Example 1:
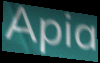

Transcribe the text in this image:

Apia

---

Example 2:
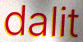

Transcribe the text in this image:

dalit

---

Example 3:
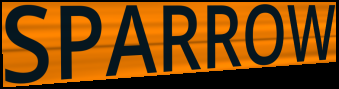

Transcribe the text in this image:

SPARROW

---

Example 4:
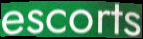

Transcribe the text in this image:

escorts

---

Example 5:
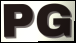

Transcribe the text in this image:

PG